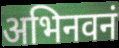
अभिनवनं